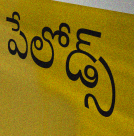
పేలోడ్స్